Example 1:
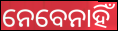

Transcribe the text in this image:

ନେବେନାହିଁ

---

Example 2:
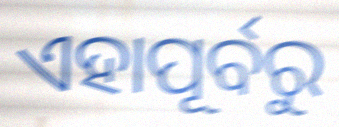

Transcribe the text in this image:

ଏହାପୂର୍ବରୁ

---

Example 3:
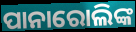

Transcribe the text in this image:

ପାନାରୋଲିଙ୍କ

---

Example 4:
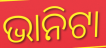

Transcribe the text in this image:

ଭାନିଟା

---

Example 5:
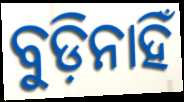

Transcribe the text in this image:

ବୁଡ଼ିନାହିଁ